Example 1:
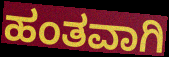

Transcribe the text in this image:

ಹಂತವಾಗಿ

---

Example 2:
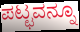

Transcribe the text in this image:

ಪಟ್ಟವನ್ನೂ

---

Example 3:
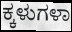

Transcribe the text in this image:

ಕ್ಕಳುಗಳಾ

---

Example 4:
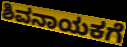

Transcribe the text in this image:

ಶಿವನಾಯಕಗೆ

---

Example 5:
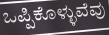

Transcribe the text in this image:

ಒಪ್ಪಿಕೊಳ್ಳುವೆವು